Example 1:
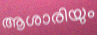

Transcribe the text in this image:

ആശാരിയും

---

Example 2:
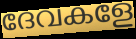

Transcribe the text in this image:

ദേവകളേ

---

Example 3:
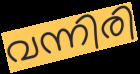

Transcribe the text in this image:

വന്നിരി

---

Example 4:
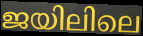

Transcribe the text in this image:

ജയിലിലെ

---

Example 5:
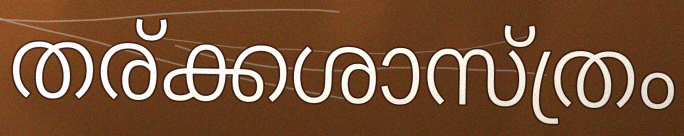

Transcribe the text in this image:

തര്ക്കശാസ്ത്രം